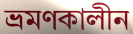
ভ্রমণকালীন